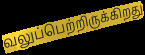
வலுப்பெற்றிருக்கிறது